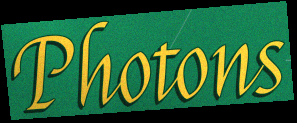
Photons